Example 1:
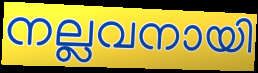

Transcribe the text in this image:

നല്ലവനായി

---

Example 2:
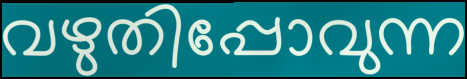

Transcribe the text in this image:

വഴുതിപ്പോവുന്ന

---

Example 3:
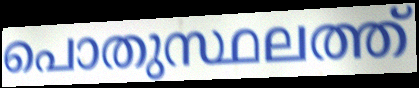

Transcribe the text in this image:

പൊതുസ്ഥലത്ത്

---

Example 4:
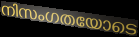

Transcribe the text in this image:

നിസംഗതയോടെ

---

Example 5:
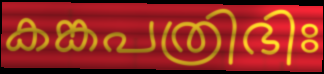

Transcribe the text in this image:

കങ്കപത്രിഭിഃ